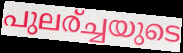
പുലര്ച്ചയുടെ